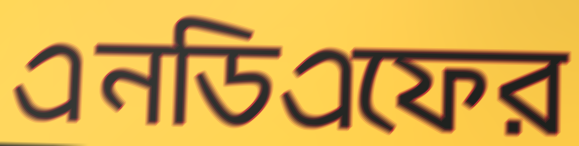
এনডিএফের